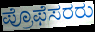
ಪ್ರೊಫೆಸರರು